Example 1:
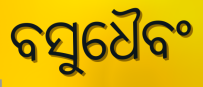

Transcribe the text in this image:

ବସୁଧୈବଂ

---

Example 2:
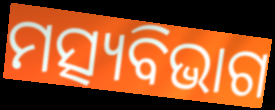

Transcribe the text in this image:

ମତ୍ସ୍ୟବିଭାଗ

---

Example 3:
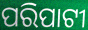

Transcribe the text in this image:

ପରିପାଟୀ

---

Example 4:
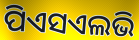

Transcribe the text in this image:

ପିଏସଏଲଭି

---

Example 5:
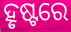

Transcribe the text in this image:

ହୃଷ୍ଟରେ